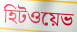
হিটওয়েভ